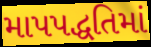
માપપદ્ધતિમાં